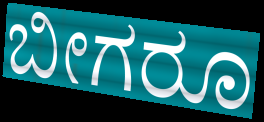
ಬೀಗರೂ